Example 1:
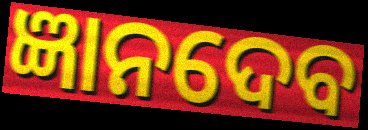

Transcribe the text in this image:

ଜ୍ଞାନଦେବ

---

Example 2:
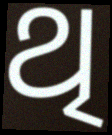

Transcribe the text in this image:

ଥି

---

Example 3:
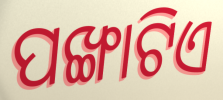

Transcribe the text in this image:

ପଙ୍ଖାଟିଏ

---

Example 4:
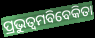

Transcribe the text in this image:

ପ୍ରଭୁତ୍ୱମବିବେକିତା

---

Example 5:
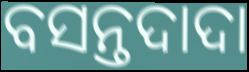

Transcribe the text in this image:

ବସନ୍ତଦାଦା